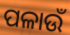
ପଳାଉଁ